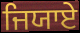
ਜਿਯਾਏ